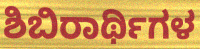
ಶಿಬಿರಾರ್ಥಿಗಳ